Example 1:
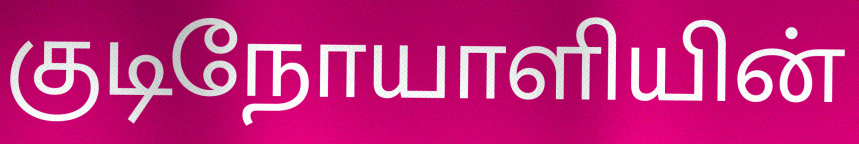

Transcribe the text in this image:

குடிநோயாளியின்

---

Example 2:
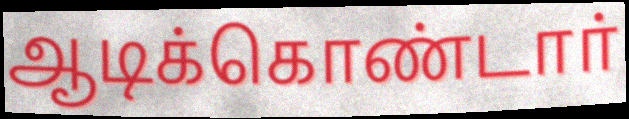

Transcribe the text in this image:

ஆடிக்கொண்டார்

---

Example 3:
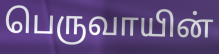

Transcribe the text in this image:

பெருவாயின்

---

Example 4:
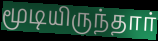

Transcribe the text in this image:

மூடியிருந்தார்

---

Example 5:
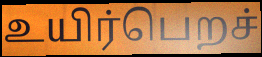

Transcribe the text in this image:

உயிர்பெறச்